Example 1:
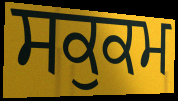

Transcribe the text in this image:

ਸਕੁਕਮ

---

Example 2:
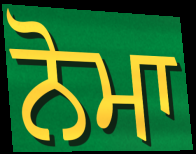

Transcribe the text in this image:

ਨੋਮਾ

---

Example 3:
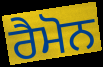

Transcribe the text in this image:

ਰੈਮੋਨ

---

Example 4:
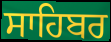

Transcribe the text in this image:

ਸਾਹਿਬਰ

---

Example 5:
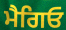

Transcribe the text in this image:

ਮੈਗਿਓ